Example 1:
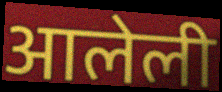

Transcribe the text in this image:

आलेली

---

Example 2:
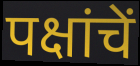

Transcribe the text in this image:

पक्षांचें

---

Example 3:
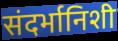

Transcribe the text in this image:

संदर्भानिशी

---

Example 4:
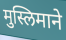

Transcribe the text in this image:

मुस्लिमाने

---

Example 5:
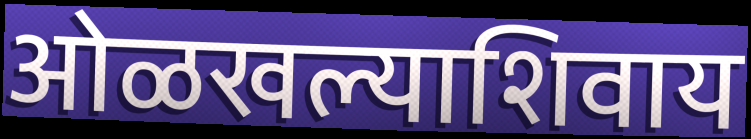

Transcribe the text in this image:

ओळखल्याशिवाय